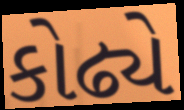
કોઢ્યે